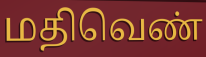
மதிவெண்